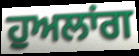
ਹੁਅਲਾਂਗ